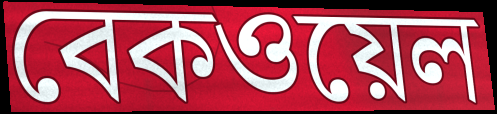
বেকওয়েল